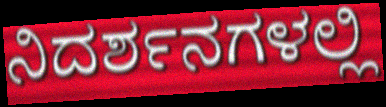
ನಿದರ್ಶನಗಳಲ್ಲಿ